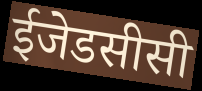
ईजेडसीसी